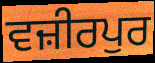
ਵਜ਼ੀਰਪੁਰ